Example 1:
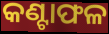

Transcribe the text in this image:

କଣ୍ଟାଫଳ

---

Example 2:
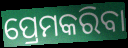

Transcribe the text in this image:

ପ୍ରେମକରିବା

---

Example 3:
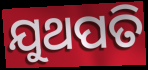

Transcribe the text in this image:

ଯୁଥପତି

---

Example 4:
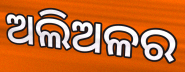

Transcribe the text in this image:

ଅଲିଅଳର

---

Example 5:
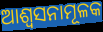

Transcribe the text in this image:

ଆଶ୍ୱସନାମୂଳକ